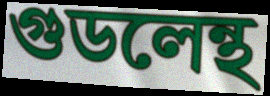
গুডলেন্থ